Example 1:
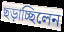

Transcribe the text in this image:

ছড়াচ্ছিলেন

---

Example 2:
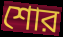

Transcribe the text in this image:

শোর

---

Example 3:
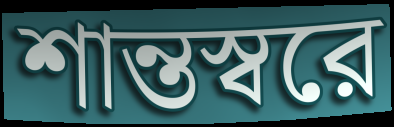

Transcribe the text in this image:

শান্তস্বরে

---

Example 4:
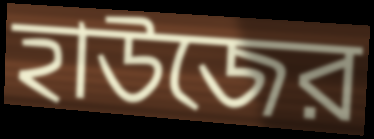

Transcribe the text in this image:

হাউজের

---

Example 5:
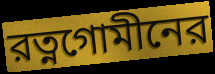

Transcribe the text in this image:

রত্নগোমীনের